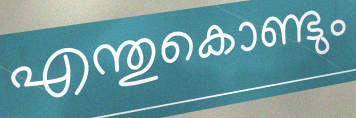
എന്തുകൊണ്ടും